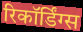
रिकॉर्डिंग्स